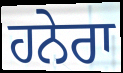
ਹਨੇਰਾ